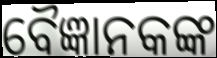
ବୈଜ୍ଞାନକଙ୍କ